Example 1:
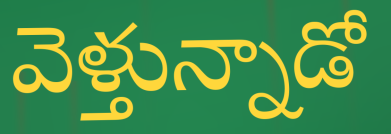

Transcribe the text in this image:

వెళ్తున్నాడో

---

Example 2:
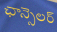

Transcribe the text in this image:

ఛాన్సెలర్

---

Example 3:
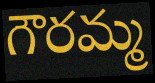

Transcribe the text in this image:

గౌరమ్మ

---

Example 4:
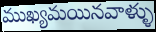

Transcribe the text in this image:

ముఖ్యమయినవాళ్ళు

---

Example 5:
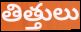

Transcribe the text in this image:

తిత్తులు